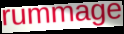
rummage